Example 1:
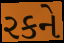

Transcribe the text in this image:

રકને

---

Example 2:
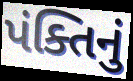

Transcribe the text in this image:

પંક્તિનું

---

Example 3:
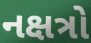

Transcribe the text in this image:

નક્ષત્રો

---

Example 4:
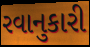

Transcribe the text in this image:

રવાનુકારી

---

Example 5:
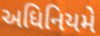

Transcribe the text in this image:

અધિનિયમે